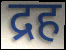
द्रह